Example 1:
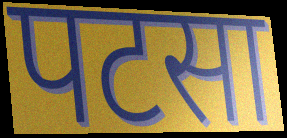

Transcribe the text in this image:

पटसा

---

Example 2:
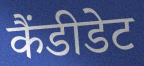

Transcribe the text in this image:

कैंडीडेट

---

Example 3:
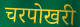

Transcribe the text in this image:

चरपोखरी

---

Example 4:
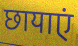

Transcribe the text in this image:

छायाएं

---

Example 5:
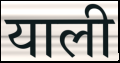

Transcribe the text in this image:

याली